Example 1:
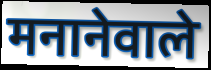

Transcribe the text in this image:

मनानेवाले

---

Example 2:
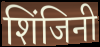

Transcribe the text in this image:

शिंजिनी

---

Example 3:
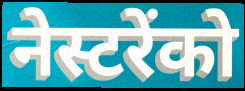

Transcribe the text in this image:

नेस्टरेंको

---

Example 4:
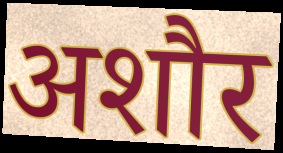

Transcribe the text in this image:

अशौर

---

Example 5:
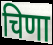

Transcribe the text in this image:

चिणा